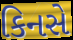
કિનસે